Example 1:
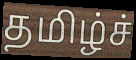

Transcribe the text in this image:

தமிழ்ச்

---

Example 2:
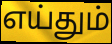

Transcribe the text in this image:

எய்தும்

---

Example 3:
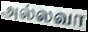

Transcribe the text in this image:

அல்லவா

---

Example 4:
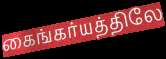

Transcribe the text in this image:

கைங்கர்யத்திலே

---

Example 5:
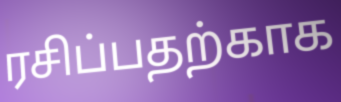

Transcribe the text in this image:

ரசிப்பதற்காக